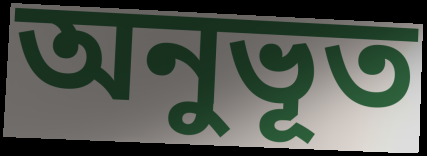
অনুভূত